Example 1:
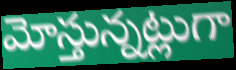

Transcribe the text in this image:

మోస్తున్నట్లుగా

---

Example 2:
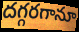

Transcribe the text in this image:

దగ్గరగానూ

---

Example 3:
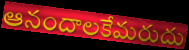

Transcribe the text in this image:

ఆనందాలకేమరుదు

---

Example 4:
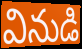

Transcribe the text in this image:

వినుడి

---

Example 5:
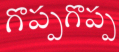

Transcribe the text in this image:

గొప్పగొప్ప